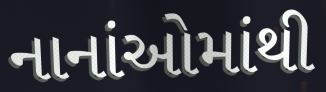
નાનાંઓમાંથી